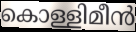
കൊള്ളിമീൻ